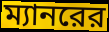
ম্যানরের